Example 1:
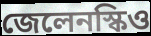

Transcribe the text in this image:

জেলেনস্কিও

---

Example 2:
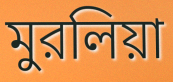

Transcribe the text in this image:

মুরলিয়া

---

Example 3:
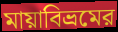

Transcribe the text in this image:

মায়াবিভ্রমের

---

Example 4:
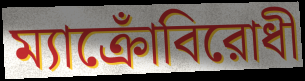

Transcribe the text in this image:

ম্যাক্রোঁবিরোধী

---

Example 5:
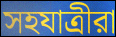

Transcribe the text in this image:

সহযাত্রীরা